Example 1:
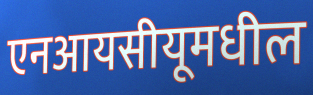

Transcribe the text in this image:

एनआयसीयूमधील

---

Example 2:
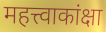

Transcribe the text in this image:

महत्त्वाकांक्षा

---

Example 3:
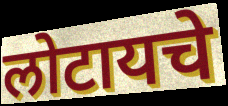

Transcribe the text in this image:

लोटायचे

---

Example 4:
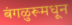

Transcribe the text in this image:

बंगळुरूमधून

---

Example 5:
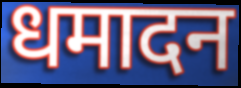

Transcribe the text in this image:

धमादन